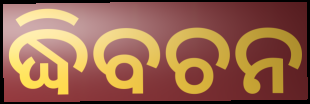
ଦ୍ଧିବଚନ